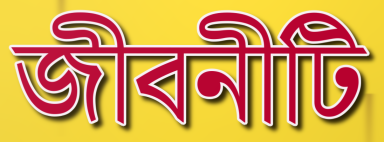
জীবনীটি